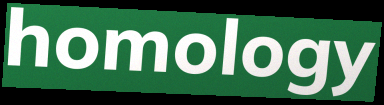
homology